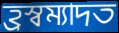
হ্ৰস্বম্যাদত